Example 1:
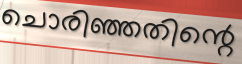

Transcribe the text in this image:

ചൊരിഞ്ഞതിന്റെ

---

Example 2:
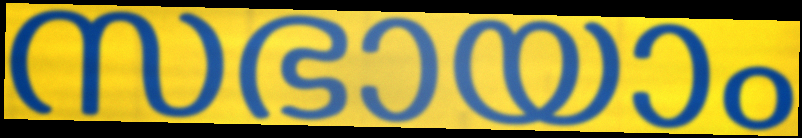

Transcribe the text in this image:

സഭായാം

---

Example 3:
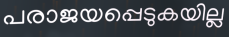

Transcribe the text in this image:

പരാജയപ്പെടുകയില്ല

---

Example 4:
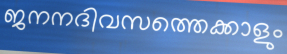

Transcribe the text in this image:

ജനനദിവസത്തെക്കാളും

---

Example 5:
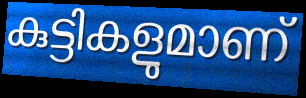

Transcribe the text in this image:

കുട്ടികളുമാണ്